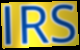
IRS